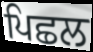
ਪਿਛਲ